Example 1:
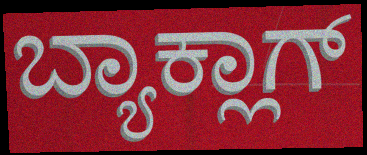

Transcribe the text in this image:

ಬ್ಯಾಕ್ಲಾಗ್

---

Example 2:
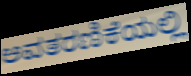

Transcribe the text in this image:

ಅವತರಣಿಕೆಯಲ್ಲಿ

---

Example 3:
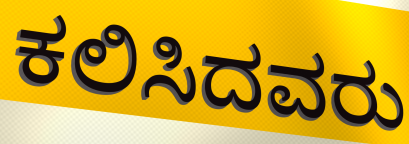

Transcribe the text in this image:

ಕಲಿಸಿದವರು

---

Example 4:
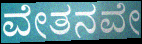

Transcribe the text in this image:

ವೇತನವೇ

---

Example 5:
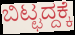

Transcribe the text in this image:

ಬಿಟ್ಟದ್ದಕ್ಕೆ